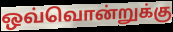
ஒவ்வொன்றுக்கு